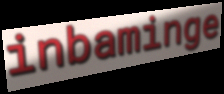
inbaminge